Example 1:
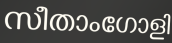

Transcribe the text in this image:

സീതാംഗോളി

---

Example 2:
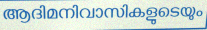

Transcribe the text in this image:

ആദിമനിവാസികളുടെയും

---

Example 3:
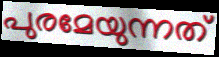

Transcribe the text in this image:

പുരമേയുന്നത്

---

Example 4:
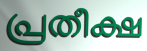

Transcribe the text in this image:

പ്രതീക്ഷ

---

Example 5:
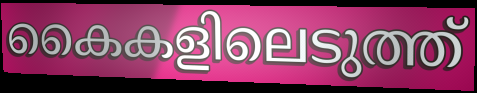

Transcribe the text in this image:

കൈകളിലെടുത്ത്